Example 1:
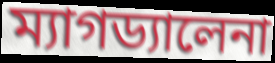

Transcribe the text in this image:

ম্যাগড্যালেনা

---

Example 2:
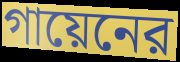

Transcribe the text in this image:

গায়েনের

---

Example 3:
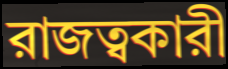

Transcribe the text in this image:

রাজত্বকারী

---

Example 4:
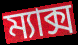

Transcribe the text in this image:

ম্যাক্স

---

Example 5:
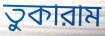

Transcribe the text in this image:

তুকারাম